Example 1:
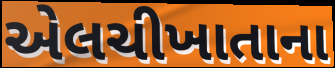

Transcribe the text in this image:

એલચીખાતાના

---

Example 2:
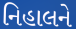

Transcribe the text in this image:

નિહાલને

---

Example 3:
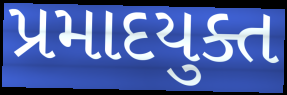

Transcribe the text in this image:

પ્રમાદયુક્ત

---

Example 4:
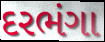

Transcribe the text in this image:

દરભંગા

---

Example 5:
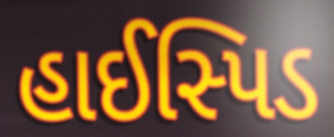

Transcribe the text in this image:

હાઈસ્પિડ